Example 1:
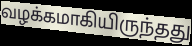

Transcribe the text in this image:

வழக்கமாகியிருந்தது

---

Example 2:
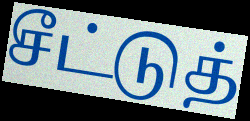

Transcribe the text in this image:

சீட்டுத்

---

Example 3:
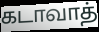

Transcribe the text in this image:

கடாவாத்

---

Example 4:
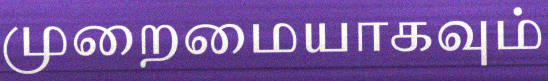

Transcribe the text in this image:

முறைமையாகவும்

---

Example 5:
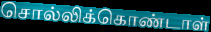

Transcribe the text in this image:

சொல்லிக்கொண்டாள்